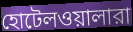
হোটেলওয়ালারা